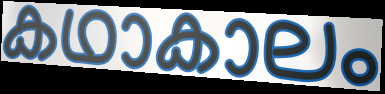
കഥാകാലം